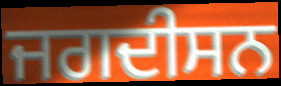
ਜਗਦੀਸਨ